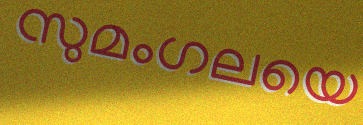
സുമംഗലയെ